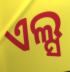
ଏଲ୍ସ